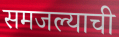
समजल्याची